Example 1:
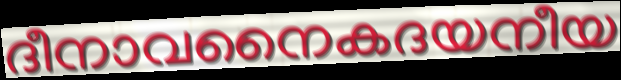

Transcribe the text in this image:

ദീനാവനൈകദയനീയ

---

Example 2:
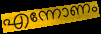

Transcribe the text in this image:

എന്നോണം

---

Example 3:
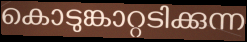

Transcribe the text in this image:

കൊടുങ്കാറ്റടിക്കുന്ന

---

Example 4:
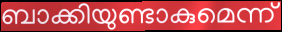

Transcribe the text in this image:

ബാക്കിയുണ്ടാകുമെന്ന്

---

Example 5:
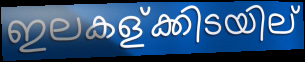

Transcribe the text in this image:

ഇലകള്ക്കിടയില്